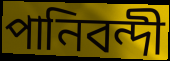
পানিবন্দী